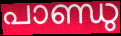
പാണ്ഡു